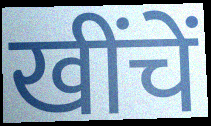
खींचें